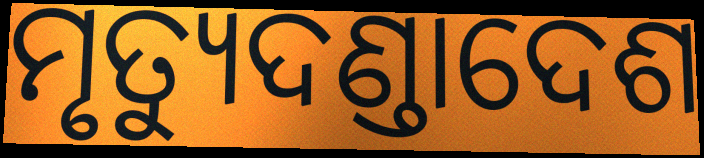
ମୃତ୍ୟୁଦଣ୍ଡାଦେଶ